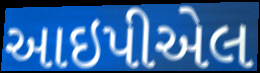
આઇપીએલ